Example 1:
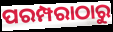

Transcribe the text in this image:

ପରମ୍ପରାଠାରୁ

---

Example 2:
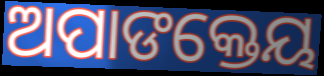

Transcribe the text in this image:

ଅପାଙକ୍ତେୟ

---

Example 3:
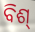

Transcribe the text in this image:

ବିଶ୍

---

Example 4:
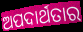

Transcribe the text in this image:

ଅପଦାର୍ଥତାର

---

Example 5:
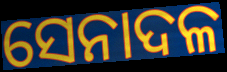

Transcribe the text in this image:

ସେନାଦଳ